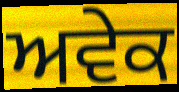
ਅਵੇਕ